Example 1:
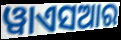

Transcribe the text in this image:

ୱାଏସଆର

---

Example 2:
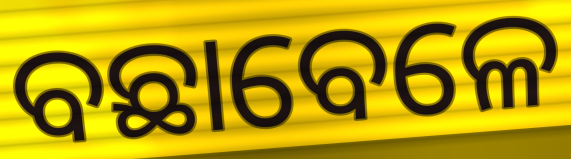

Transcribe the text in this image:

ବଛାବେଳେ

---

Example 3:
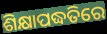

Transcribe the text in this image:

ଶିକ୍ଷାପଦ୍ଧତିରେ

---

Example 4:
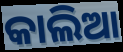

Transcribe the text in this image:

କାଲିଆ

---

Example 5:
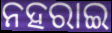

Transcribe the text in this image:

ନହରାଇ